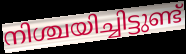
നിശ്ചയിച്ചിട്ടുണ്ട്